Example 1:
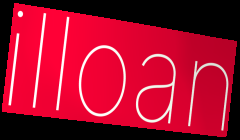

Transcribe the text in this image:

illoan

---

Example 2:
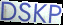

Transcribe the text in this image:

DSKP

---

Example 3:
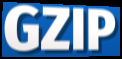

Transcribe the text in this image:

GZIP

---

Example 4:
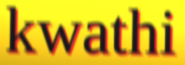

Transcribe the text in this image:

kwathi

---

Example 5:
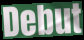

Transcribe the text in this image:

Debut